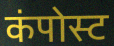
कंपोस्ट